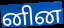
னின